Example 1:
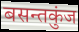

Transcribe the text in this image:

बसन्तकुंज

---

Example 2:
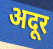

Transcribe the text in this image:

अदूर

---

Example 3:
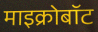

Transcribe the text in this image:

माइक्रोबॉट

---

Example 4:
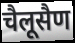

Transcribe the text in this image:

चैलूसैण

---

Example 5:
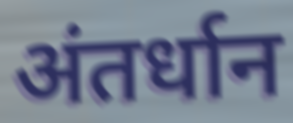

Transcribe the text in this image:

अंतर्धान